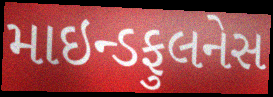
માઇન્ડફુલનેસ